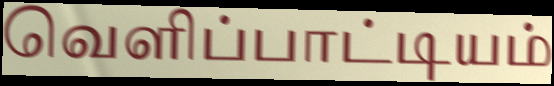
வெளிப்பாட்டியம்